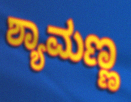
ಶ್ಯಾಮಣ್ಣ